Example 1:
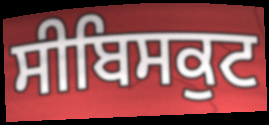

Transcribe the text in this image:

ਸੀਬਿਸਕੁਟ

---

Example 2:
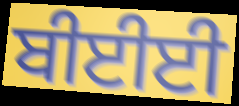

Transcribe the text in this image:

ਬੀਈਈ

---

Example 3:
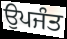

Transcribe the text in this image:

ਉਪਜੰਤ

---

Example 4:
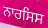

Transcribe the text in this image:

ਨਾਰਸਿਸ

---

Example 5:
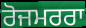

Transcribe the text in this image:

ਰੋਜਮਰਰਾ